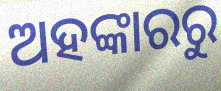
ଅହଙ୍କାରରୁ